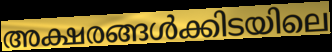
അക്ഷരങ്ങൾക്കിടയിലെ